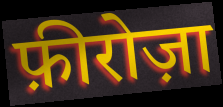
फ़ीरोज़ा